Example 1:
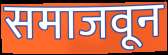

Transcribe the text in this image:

समाजवून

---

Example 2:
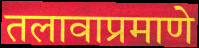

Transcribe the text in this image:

तलावाप्रमाणे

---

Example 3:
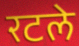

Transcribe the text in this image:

रटले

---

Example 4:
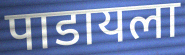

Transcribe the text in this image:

पाडायला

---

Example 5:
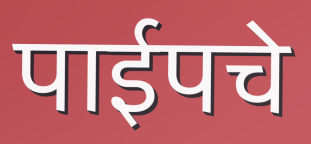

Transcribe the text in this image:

पाईपचे